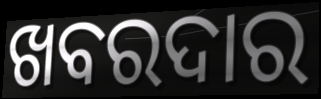
ଖବରଦାର